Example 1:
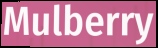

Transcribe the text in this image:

Mulberry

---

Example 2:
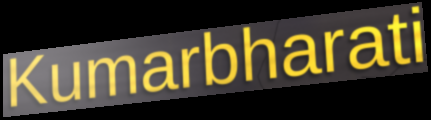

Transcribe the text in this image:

Kumarbharati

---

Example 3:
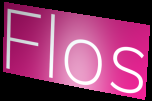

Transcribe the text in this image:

Flos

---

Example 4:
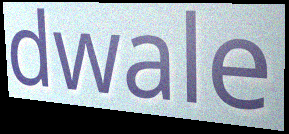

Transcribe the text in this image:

dwale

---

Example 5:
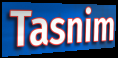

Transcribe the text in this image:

Tasnim